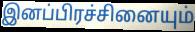
இனப்பிரச்சினையும்